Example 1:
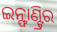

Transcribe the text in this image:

ଇନ୍ଫାଣ୍ଟ୍ରିର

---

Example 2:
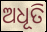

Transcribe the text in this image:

ଅଧୂତି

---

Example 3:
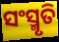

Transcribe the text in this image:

ସଂସ୍ମୃତି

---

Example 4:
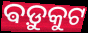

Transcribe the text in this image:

ଵଡ଼ୁକୁଟ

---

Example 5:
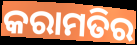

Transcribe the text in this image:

କରାମତିର